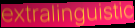
extralinguistic